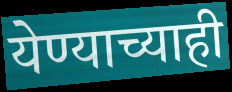
येण्याच्याही